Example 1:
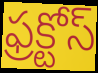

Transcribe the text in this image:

ఫ్రక్టోస్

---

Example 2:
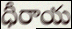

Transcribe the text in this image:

ధీరాయ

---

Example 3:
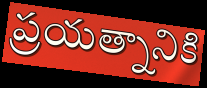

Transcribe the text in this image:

ప్రయత్నానికి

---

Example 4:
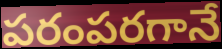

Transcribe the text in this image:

పరంపరగానే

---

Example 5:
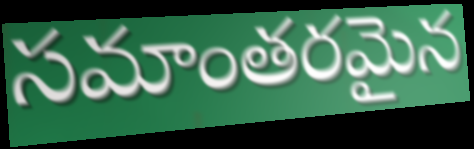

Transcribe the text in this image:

సమాంతరమైన